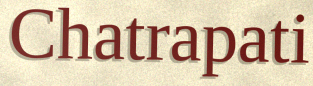
Chatrapati